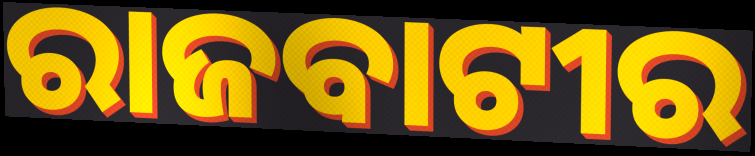
ରାଜବାଟୀର